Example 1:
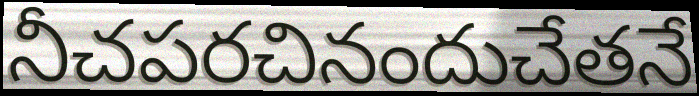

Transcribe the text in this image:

నీచపరచినందుచేతనే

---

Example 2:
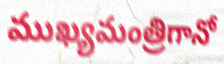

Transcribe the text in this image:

ముఖ్యమంత్రిగానో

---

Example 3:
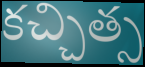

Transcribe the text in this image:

కచ్చిత్స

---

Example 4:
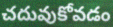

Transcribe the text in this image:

చదువుకోవడం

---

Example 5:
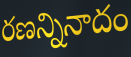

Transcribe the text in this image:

రణన్నినాదం